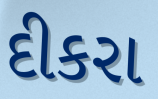
દીકરા